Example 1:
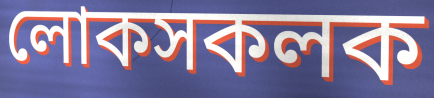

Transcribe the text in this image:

লোকসকলক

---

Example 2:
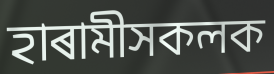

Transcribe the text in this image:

হাৰামীসকলক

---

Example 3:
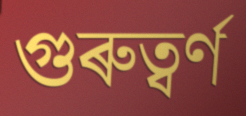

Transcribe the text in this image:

গুৰুত্ৱৰ্ণ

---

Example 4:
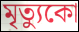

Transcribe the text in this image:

মৃত্যুকো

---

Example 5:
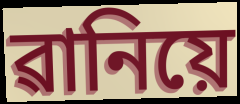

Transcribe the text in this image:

ৱানিয়ে